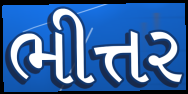
ભીત્તર